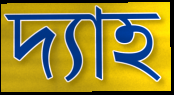
দ্যাহ